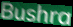
Bushra